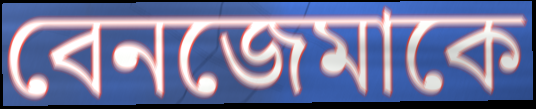
বেনজেমাকে